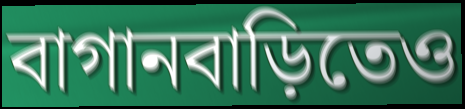
বাগানবাড়িতেও